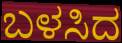
ಬಳಸಿದ